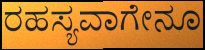
ರಹಸ್ಯವಾಗೇನೂ